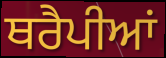
ਥਰੈਪੀਆਂ